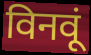
विनवूं